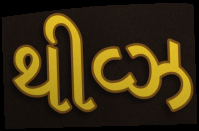
થીવ્ઝ